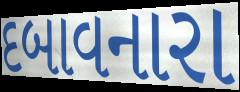
દબાવનારા